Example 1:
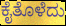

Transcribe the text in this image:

ಕೈತೊಳೆದು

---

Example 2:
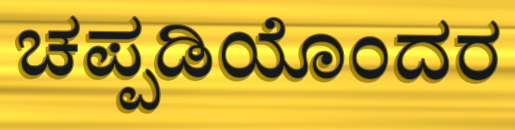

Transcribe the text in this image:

ಚಪ್ಪಡಿಯೊಂದರ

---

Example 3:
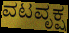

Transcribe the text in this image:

ವಟವೃಕ್ಷ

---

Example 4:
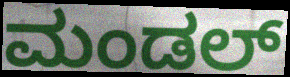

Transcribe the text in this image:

ಮಂಡಲ್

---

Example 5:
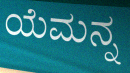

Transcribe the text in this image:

ಯೆಮನ್ನ